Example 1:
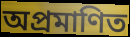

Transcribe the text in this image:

অপ্রমাণিত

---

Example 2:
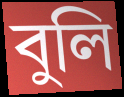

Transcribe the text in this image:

বুলি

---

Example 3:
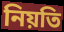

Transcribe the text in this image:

নিয়তি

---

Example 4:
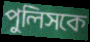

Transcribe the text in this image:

পুলিসকে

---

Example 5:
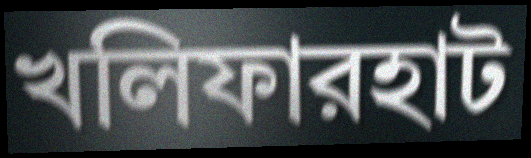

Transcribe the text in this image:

খলিফারহাট